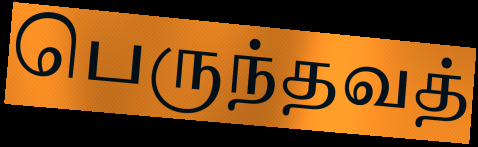
பெருந்தவத்